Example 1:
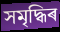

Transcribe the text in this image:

সমৃদ্ধিৰ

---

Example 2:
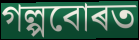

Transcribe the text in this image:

গল্পবোৰত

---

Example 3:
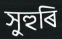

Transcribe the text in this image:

সুহুৰি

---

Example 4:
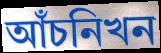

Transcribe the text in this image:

আঁচনিখন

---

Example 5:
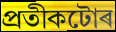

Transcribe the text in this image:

প্ৰতীকটোৰ